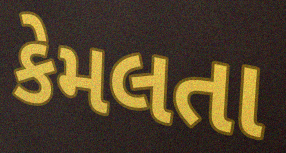
કેમલતા